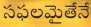
సఫలమైతేనే